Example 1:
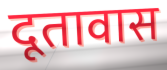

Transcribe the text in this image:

दूतावास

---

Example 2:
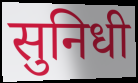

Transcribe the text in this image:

सुनिधी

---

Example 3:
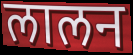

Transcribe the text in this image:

लालन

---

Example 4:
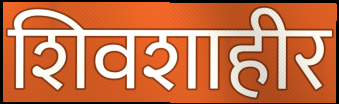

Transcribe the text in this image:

शिवशाहीर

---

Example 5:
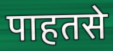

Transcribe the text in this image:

पाहतसे